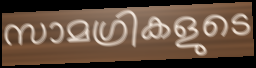
സാമഗ്രികളുടെ